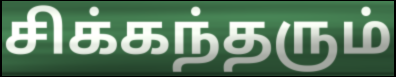
சிக்கந்தரும்